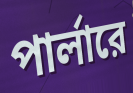
পার্লারে